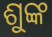
ଶୁଙ୍କ